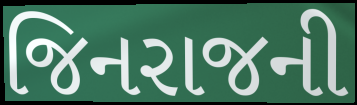
જિનરાજની